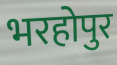
भरहोपुर